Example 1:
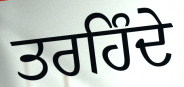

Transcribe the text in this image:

ਤਰਹਿੰਦੇ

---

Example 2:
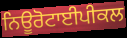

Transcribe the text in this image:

ਨਿਊਰੋਟਾਈਪੀਕਲ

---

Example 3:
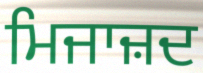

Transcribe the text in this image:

ਮਿਜਾਜ਼ਦ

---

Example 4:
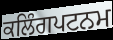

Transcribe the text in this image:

ਕਲਿੰਗਪਟਨਮ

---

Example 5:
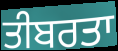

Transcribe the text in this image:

ਤੀਬਰਤਾ